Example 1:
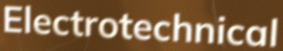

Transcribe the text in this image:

Electrotechnical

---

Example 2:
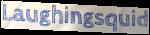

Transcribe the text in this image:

Laughingsquid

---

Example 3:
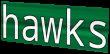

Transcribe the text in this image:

hawks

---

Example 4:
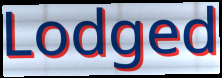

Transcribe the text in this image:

Lodged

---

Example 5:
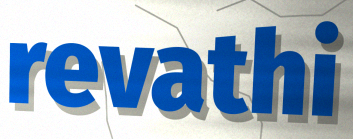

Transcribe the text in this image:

revathi